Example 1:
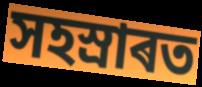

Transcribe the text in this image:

সহস্ৰাৰত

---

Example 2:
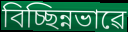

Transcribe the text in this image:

বিচ্ছিন্নভাৱে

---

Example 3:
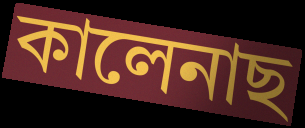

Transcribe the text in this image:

কালেনাছ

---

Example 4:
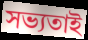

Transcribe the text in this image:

সভ্যতাই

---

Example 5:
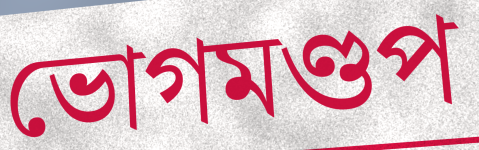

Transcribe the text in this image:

ভোগমণ্ডপ